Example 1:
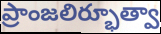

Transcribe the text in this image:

ప్రాంజలిర్భూత్వా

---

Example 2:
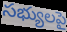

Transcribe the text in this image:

సభ్యులపై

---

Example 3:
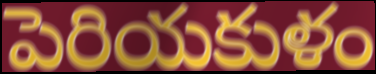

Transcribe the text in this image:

పెరియకుళం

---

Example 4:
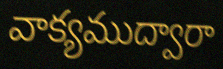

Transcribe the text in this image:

వాక్యముద్వారా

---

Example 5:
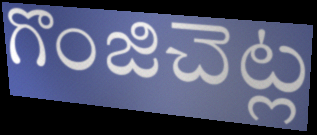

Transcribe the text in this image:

గొంజిచెట్ల